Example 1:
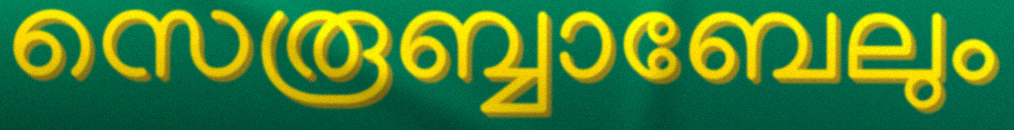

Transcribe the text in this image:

സെരൂബ്ബാബേലും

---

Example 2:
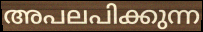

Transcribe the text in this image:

അപലപിക്കുന്ന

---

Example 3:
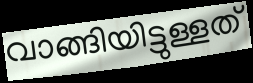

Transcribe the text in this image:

വാങ്ങിയിട്ടുള്ളത്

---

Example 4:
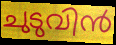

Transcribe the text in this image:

ചുടുവിൻ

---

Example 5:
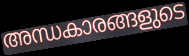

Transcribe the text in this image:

അന്ധകാരങ്ങളുടെ